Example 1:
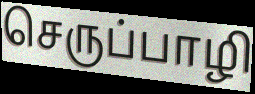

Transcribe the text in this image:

செருப்பாழி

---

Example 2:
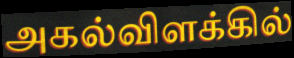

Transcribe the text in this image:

அகல்விளக்கில்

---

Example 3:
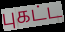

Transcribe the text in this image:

புகட்ட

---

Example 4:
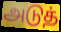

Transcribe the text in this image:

அடுத்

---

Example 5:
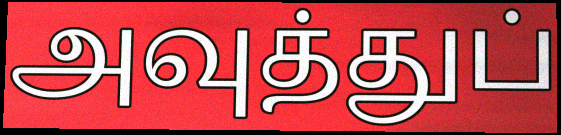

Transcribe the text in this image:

அவுத்துப்